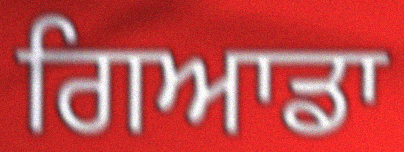
ਗਿਆਡਾ